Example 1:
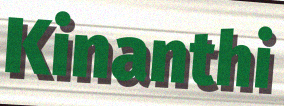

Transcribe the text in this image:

Kinanthi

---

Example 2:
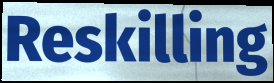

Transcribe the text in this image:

Reskilling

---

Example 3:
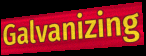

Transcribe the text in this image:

Galvanizing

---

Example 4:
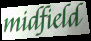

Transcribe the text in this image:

midfield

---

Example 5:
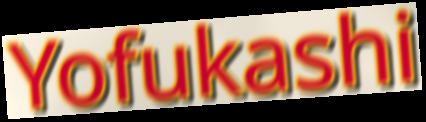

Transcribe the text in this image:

Yofukashi